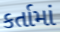
કર્તામાં